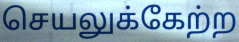
செயலுக்கேற்ற